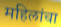
महिलांचा